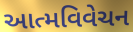
આત્મવિવેચન